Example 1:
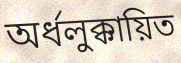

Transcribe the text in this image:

অর্ধলুক্কায়িত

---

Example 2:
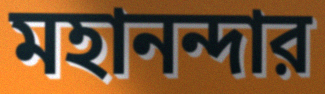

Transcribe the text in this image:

মহানন্দার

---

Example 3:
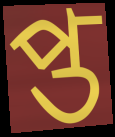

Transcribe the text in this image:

প্ত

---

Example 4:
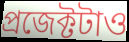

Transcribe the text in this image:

প্রজেক্টটাও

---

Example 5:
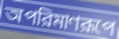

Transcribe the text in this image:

অপরিমাণরূপে